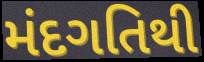
મંદગતિથી